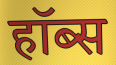
हॉब्स